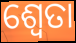
ଶ୍ୱେତା